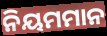
ନିୟମମାନ